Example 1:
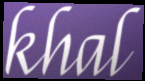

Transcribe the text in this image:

khal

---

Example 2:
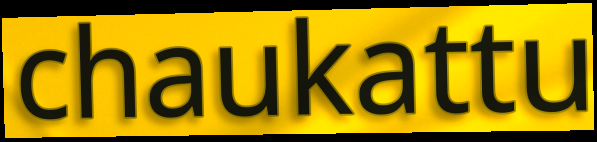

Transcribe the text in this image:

chaukattu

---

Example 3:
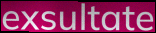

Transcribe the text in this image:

exsultate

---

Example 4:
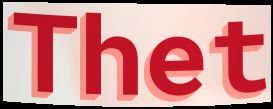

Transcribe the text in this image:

Thet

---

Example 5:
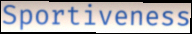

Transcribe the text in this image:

Sportiveness